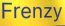
Frenzy